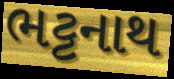
ભટ્ટનાથ